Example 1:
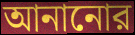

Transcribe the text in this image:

আনানোর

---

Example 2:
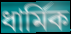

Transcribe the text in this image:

ধার্মিক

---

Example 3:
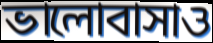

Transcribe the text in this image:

ভালোবাসাও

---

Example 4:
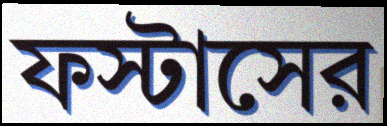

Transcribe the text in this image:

ফস্টাসের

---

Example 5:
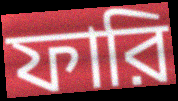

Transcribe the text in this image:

ফারি